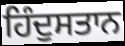
ਹਿੰਦੁਸਤਾਨ